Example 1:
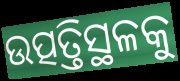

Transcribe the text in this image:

ଉତ୍ପତ୍ତିସ୍ଥଳକୁ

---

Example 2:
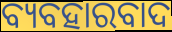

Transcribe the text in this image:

ବ୍ୟବହାରବାଦ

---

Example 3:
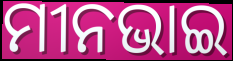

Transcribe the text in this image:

ମୀନଭାଇ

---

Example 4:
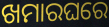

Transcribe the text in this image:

ଖମାରଘରେ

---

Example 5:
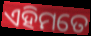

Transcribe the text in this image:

ଏହିମତେ